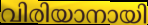
വിരിയാനായി